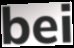
bei